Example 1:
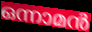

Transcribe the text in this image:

ഒന്നാമൻ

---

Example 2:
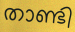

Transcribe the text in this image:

താണ്ടി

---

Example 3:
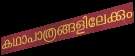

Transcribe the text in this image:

കഥാപാത്രങ്ങളിലേക്കും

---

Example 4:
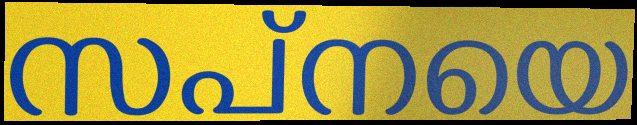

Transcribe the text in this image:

സപ്‌നയെ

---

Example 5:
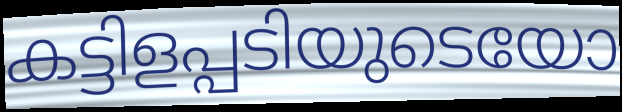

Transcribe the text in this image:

കട്ടിളപ്പടിയുടെയോ